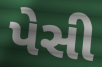
પેસી